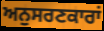
ਅਨੁਸਰਣਕਾਰਾਂ